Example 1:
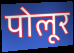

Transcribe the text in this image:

पोलूर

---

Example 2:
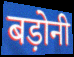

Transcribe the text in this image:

बड़ोनी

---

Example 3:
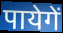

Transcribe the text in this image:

पायेगें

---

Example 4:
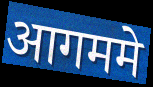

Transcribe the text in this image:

आगममे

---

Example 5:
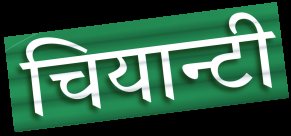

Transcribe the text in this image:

चियान्टी